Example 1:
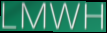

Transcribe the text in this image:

LMWH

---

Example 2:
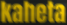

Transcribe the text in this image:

kaheta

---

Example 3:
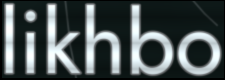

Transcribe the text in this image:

likhbo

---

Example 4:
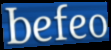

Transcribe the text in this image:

befeo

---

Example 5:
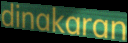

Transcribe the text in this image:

dinakaran